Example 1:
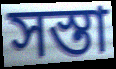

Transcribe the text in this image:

সস্তা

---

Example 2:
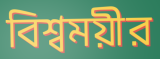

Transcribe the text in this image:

বিশ্বময়ীর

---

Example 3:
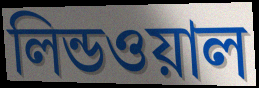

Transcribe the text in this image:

লিন্ডওয়াল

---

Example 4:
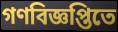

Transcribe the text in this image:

গণবিজ্ঞপ্তিতে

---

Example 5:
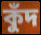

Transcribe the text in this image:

কুঁদ